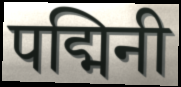
पद्मिनी